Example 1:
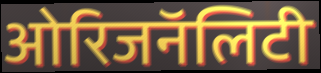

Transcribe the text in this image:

ओरिजनॅलिटी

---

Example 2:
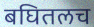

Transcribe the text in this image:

बघितलच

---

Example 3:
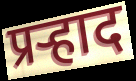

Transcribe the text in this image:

प्रर्‍हाद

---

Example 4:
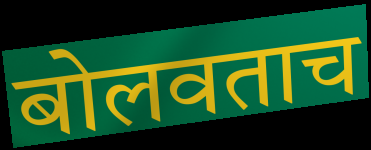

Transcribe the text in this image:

बोलवताच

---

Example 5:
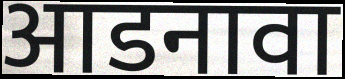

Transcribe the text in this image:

आडनावा